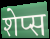
शेप्स